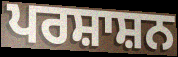
ਪਰਸ਼ਾਸ਼ਨ